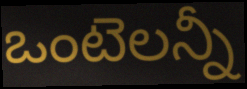
ఒంటెలన్నీ